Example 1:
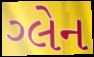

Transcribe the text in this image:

ગ્લેન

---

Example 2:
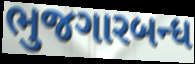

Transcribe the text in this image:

ભુજગારબન્ધ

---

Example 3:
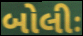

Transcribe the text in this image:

બોલીઃ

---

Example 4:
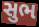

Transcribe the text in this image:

સુભ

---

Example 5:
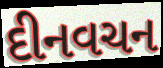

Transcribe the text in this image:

દીનવચન